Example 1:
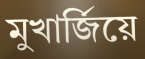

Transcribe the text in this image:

মুখাৰ্জিয়ে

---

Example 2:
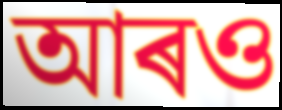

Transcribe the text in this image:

আৰও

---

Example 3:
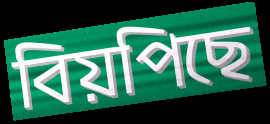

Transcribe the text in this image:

বিয়পিছে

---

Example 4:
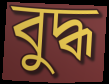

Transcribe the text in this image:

বুদ্ধ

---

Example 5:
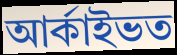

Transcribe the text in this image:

আৰ্কাইভত